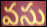
వసు